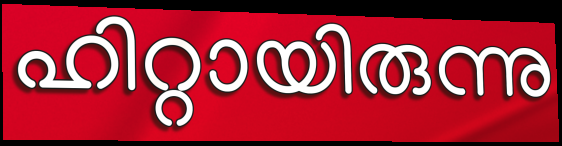
ഹിറ്റായിരുന്നു